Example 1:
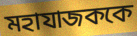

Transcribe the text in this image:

মহাযাজককে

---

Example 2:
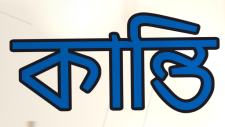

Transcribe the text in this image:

কান্তি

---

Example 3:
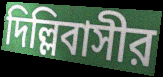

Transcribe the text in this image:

দিল্লিবাসীর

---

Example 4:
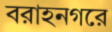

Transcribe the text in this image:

বরাহনগরে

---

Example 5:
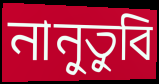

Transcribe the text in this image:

নানুতুবি